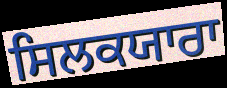
ਸਿਲਕਯਾਰਾ